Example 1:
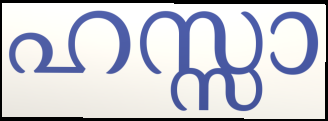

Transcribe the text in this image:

ഹസ്സാ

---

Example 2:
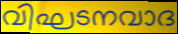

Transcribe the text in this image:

വിഘടനവാദ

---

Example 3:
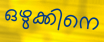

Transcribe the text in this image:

ഒഴുക്കിനെ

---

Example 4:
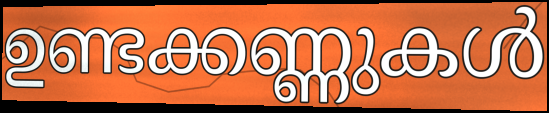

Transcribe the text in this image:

ഉണ്ടക്കണ്ണുകൾ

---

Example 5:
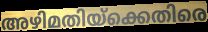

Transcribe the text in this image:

അഴിമതിയ്ക്കെതിരെ